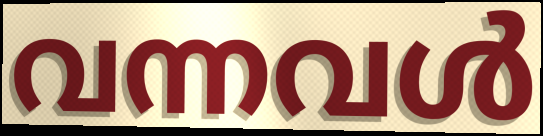
വന്നവൾ